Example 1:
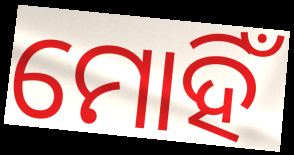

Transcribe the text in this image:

ମୋହିଁ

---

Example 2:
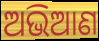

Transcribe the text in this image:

ଅଭିଆଣ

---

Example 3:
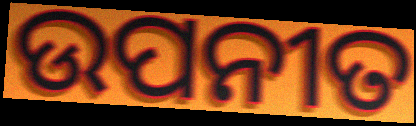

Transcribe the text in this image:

ଉପନୀତ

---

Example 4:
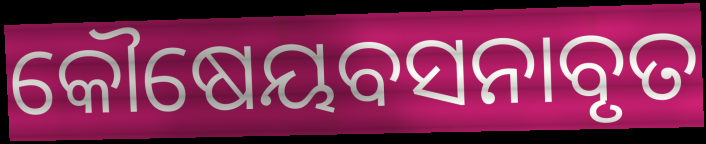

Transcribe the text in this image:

କୌଷେୟବସନାବୃତ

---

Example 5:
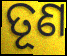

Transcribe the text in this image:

ତୂଣ